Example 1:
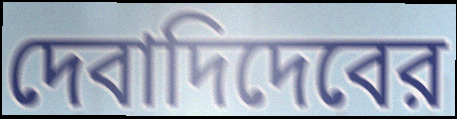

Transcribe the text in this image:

দেবাদিদেবের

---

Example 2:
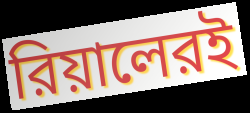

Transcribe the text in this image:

রিয়ালেরই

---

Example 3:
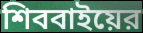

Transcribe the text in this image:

শিববাইয়ের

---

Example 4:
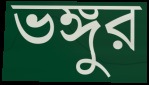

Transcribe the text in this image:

ভঙ্গুর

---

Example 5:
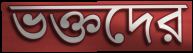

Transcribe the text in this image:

ভক্তদের